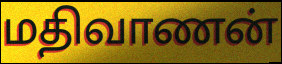
மதிவாணன்